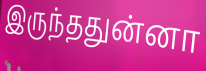
இருந்ததுன்னா